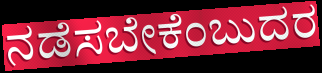
ನಡೆಸಬೇಕೆಂಬುದರ